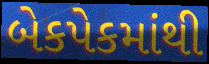
બેકપેકમાંથી